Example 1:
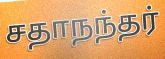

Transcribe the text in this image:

சதாநந்தர்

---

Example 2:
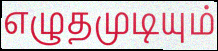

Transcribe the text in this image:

எழுதமுடியும்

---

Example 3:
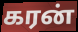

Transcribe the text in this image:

கரன்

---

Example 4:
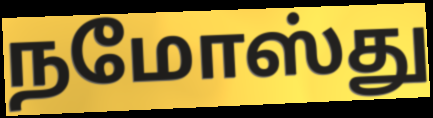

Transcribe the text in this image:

நமோஸ்து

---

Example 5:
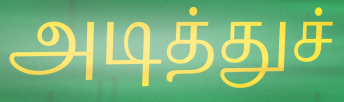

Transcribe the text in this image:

அடித்துச்